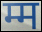
म्म